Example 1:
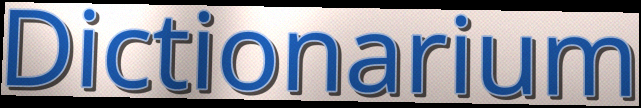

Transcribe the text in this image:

Dictionarium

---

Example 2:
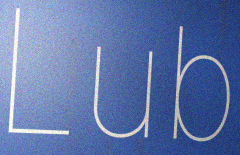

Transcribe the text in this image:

Lub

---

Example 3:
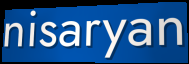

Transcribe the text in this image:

nisaryan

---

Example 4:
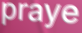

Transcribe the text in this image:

praye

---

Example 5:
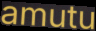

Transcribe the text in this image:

amutu